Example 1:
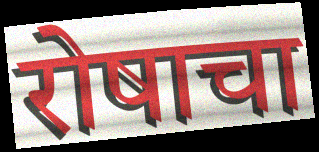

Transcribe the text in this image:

रोषाचा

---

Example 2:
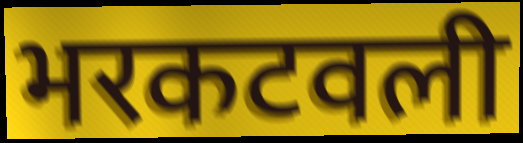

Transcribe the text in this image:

भरकटवली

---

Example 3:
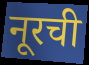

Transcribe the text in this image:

नूरची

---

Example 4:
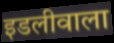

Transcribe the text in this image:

इडलीवाला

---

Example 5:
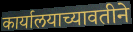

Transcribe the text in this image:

कार्यालयाच्यावतीने